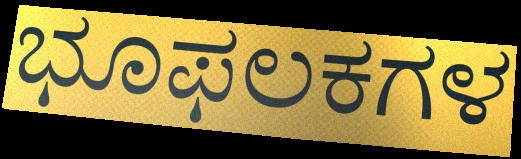
ಭೂಫಲಕಗಳ